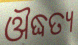
ଔଦ୍ଧତ୍ୟ